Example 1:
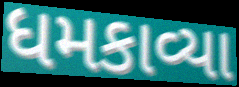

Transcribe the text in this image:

ધમકાવ્યા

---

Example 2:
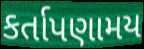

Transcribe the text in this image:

કર્તાપણામય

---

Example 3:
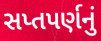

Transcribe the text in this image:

સપ્તપર્ણનું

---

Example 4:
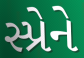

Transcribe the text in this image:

સ્પ્રેને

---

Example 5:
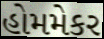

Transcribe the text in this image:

હોમમેકર